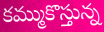
కమ్ముకొస్తున్న